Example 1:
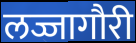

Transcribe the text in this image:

लज्जागौरी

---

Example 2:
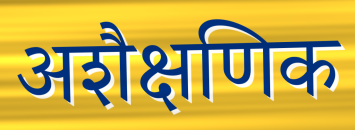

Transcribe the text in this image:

अशैक्षणिक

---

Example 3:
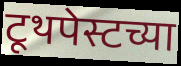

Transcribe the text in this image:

टूथपेस्टच्या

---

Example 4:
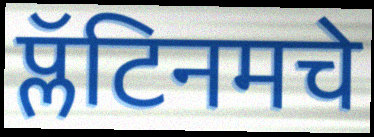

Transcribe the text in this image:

प्लॅटिनमचे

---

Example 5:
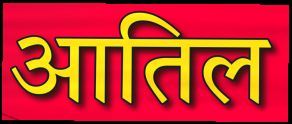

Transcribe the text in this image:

आतिल